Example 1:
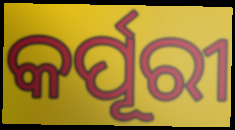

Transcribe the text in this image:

କର୍ପୂରୀ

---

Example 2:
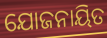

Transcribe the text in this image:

ଯୋଜନାୟିତ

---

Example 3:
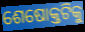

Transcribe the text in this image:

ଶେଷୋକ୍ତଟିକୁ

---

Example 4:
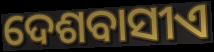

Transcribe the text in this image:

ଦେଶବାସୀଏ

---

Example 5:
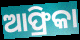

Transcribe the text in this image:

ଆଫ୍ରିକା